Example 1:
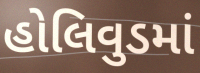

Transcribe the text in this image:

હોલિવુડમાં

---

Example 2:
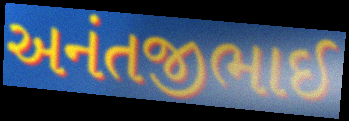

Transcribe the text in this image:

અનંતજીભાઈ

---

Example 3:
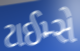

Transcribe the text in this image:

ટાઈમ્સે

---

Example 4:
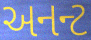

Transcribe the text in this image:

અનન્ટ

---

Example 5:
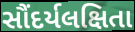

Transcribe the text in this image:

સૌંદર્યલક્ષિતા